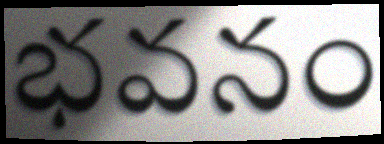
భవనం